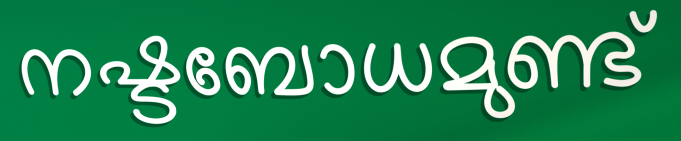
നഷ്ടബോധമുണ്ട്